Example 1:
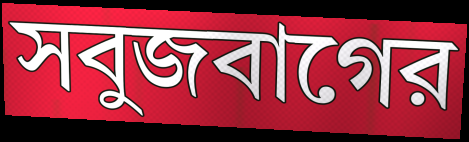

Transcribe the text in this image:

সবুজবাগের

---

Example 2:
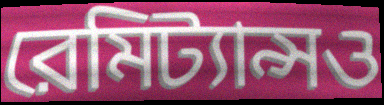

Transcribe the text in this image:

রেমিট্যান্সও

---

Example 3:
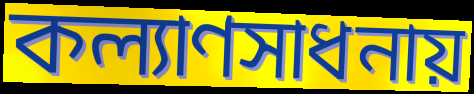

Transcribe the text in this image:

কল্যাণসাধনায়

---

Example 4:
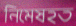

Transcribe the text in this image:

নিমেষহত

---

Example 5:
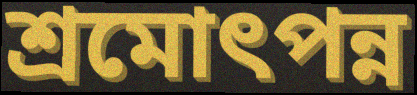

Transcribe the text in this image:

শ্রমোৎপন্ন